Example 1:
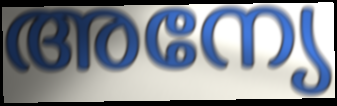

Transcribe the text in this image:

അന്യേ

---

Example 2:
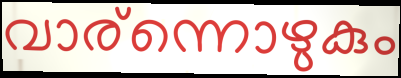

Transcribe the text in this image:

വാര്ന്നൊഴുകും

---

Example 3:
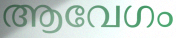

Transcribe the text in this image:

ആവേഗം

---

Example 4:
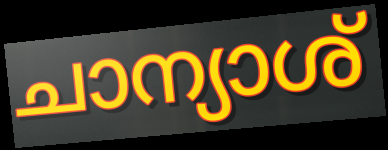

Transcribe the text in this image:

ചാന്യാശ്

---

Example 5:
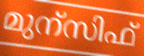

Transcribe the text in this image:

മുന്സിഫ്